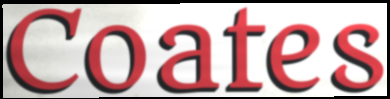
Coates